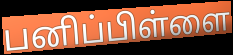
பனிப்பிள்ளை